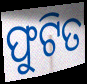
ଫୁଟିତ